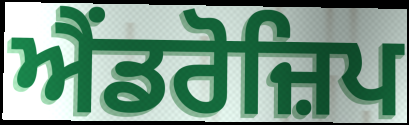
ਐਂਡਰੋਜ਼ਿਪ